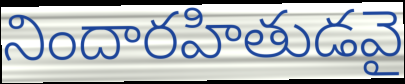
నిందారహితుడవై